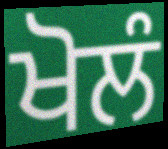
ਖੋਲੰ